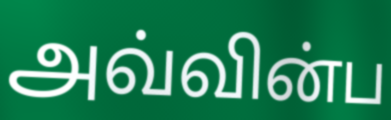
அவ்வின்ப